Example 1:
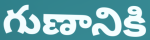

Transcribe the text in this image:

గుణానికి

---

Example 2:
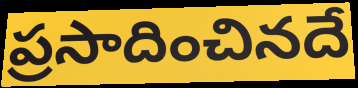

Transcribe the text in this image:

ప్రసాదించినదే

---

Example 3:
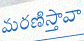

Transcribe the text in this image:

మరణిస్తావా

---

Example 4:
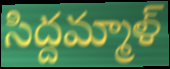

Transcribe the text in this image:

సిద్దమ్మాళ్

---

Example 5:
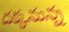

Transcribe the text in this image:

దక్కనున్న